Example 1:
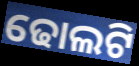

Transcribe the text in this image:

ଢୋଲଟି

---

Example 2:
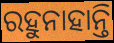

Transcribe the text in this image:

ରହୁନାହାନ୍ତି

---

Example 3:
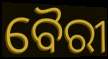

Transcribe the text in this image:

ବୈରୀ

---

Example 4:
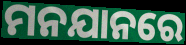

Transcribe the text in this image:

ମନଯାନରେ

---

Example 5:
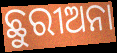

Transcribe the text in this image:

ଛୁରୀଅନା